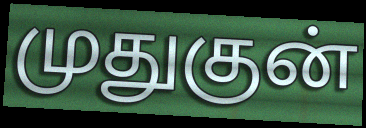
முதுகுன்